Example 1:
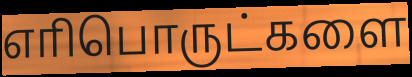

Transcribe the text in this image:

எரிபொருட்களை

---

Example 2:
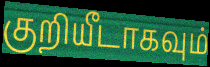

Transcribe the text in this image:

குறியீடாகவும்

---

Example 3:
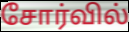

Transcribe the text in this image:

சோர்வில்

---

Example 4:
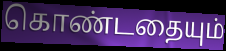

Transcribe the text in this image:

கொண்டதையும்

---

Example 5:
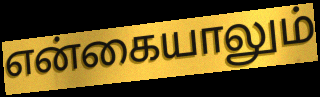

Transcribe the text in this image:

என்கையாலும்